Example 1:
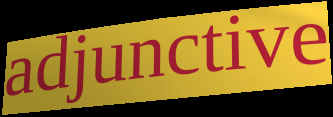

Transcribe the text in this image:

adjunctive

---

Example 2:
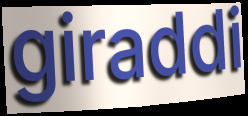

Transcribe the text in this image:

giraddi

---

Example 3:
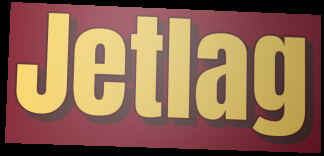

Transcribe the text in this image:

Jetlag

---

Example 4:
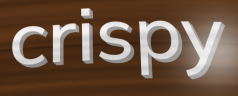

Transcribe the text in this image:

crispy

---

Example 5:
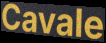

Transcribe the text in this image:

Cavale